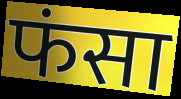
फंसा